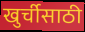
खुर्चीसाठी